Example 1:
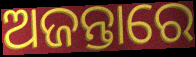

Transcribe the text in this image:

ଅଜନ୍ତାରେ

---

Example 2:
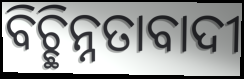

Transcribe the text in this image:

ବିଚ୍ଛିନ୍ନତାବାଦୀ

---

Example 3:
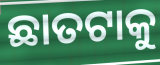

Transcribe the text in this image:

ଛାତଟାକୁ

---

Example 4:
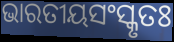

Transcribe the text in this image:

ଭାରତୀୟସଂସ୍କୃତଃ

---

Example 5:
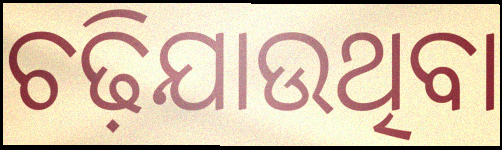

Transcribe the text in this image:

ଚଢ଼ିଯାଉଥିବା